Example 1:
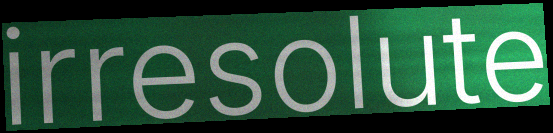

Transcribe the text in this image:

irresolute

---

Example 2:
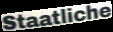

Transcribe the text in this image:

Staatliche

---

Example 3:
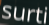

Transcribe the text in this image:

surti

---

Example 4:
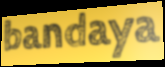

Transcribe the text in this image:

bandaya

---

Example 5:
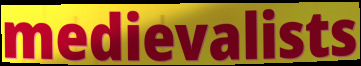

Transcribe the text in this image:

medievalists